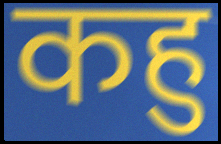
कहु